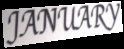
JANUARY